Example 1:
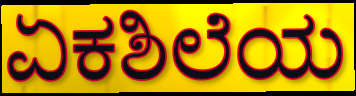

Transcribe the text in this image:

ಏಕಶಿಲೆಯ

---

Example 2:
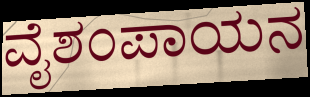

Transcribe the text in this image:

ವೈಶಂಪಾಯನ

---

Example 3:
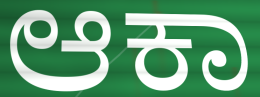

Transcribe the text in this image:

ಆಕಾ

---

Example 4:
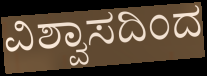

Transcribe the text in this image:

ವಿಶ್ವಾಸದಿಂದ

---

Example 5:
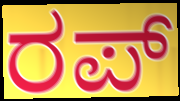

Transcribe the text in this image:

ರಪ್